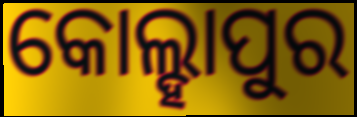
କୋଲ୍ହାପୁର